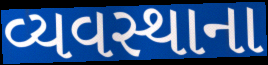
વ્યવસ્થાના